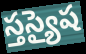
స్తస్యైష